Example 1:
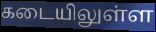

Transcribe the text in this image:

கடையிலுள்ள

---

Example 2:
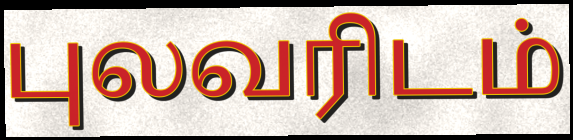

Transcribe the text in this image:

புலவரிடம்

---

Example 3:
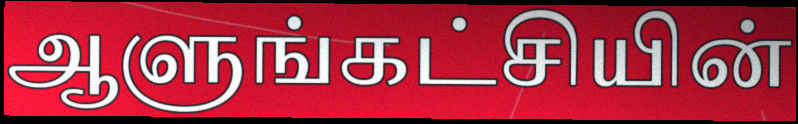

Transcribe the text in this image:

ஆளுங்கட்சியின்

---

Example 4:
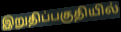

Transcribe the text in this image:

இறுதிப்பகுதியில்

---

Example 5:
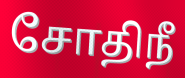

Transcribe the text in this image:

சோதிநீ